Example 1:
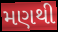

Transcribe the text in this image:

મણથી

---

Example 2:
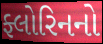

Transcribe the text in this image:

ફ્લોરિનનો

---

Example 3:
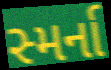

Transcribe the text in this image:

સ્મર્ના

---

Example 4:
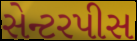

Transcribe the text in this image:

સેન્ટરપીસ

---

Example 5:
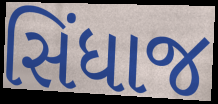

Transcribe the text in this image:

સિંધાજ